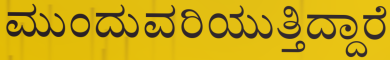
ಮುಂದುವರಿಯುತ್ತಿದ್ದಾರೆ